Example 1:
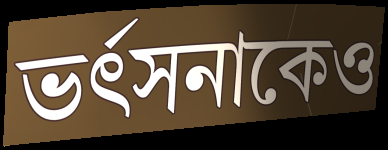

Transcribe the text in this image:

ভর্ৎসনাকেও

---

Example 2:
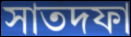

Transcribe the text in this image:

সাতদফা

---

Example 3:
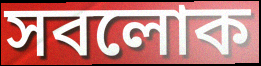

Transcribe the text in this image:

সবলোক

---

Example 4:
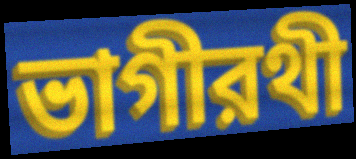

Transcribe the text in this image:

ভাগীরথী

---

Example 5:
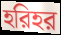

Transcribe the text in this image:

হরিহর